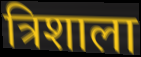
त्रिशाला